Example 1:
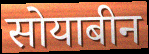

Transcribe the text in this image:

सोयाबीन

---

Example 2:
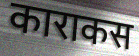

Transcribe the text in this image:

काराकस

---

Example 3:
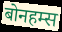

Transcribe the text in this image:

बोनहम्स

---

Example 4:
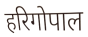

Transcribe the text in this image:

हरिगोपाल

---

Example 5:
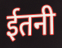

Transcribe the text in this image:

ईतनी